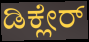
ಡಿಕ್ಲೇರ್